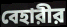
বেহারীর